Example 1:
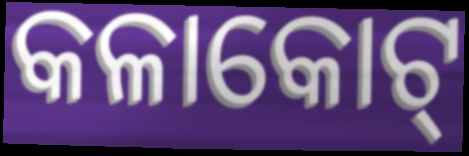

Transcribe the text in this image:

କଳାକୋଟ୍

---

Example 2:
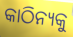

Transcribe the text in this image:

କାଠିନ୍ୟକୁ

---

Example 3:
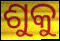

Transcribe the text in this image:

ଶୁକୁ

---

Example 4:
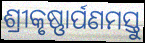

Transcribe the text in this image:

ଶ୍ରୀକୃଷ୍ଣାର୍ପଣମସ୍ତୁ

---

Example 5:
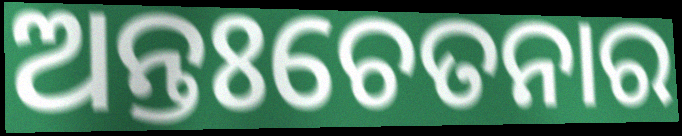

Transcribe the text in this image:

ଅନ୍ତଃଚେତନାର